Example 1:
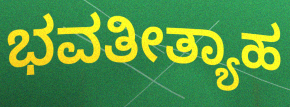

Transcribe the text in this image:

ಭವತೀತ್ಯಾಹ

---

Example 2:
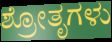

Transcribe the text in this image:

ಶ್ರೋತೃಗಳು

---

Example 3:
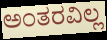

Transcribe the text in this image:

ಅಂತರವಿಲ್ಲ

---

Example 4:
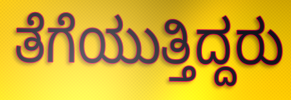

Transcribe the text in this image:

ತೆಗೆಯುತ್ತಿದ್ದರು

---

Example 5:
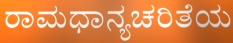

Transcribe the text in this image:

ರಾಮಧಾನ್ಯಚರಿತೆಯ